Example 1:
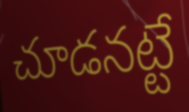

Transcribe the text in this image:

చూడనట్టే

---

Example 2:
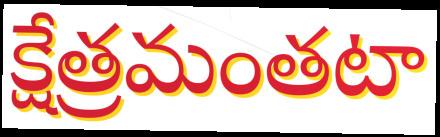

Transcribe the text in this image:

క్షేత్రమంతటా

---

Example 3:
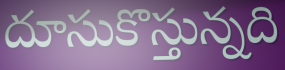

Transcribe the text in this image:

దూసుకొస్తున్నది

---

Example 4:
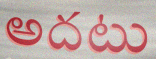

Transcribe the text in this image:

అదటు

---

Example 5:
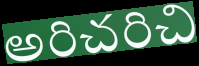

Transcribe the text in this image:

అరిచరిచి